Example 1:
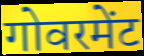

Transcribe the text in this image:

गोवरमेंट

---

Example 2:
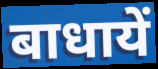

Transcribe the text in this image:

बाधायें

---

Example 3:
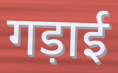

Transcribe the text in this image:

गड़ाई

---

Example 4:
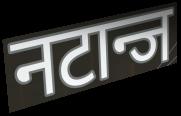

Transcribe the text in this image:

नटान्ज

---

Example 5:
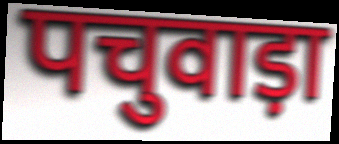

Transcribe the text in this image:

पचुवाड़ा